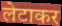
लेटाकर